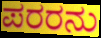
ಪರರನು